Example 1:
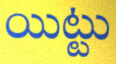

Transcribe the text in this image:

యిట్టు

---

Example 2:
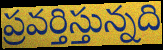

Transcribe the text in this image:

ప్రవర్తిస్తున్నది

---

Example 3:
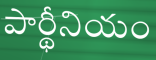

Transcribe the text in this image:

పార్థీనియం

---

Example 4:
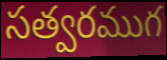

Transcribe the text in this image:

సత్వరముగ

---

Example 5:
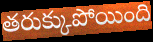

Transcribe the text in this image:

తరుక్కుపోయింది